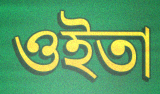
ওইতা